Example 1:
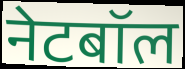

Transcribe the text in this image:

नेटबॉल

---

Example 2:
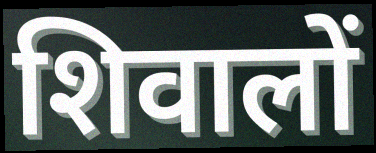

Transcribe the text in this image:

शिवालों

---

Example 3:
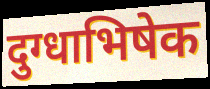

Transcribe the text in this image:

दुग्धाभिषेक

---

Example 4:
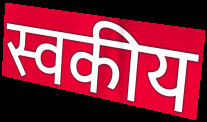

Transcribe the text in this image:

स्वकीय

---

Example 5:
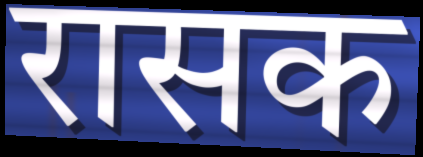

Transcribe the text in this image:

रासक